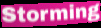
Storming